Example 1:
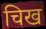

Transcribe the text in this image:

चिख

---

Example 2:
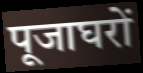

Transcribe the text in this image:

पूजाघरों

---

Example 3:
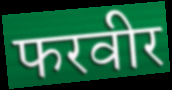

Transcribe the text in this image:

फरवीर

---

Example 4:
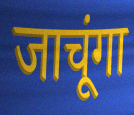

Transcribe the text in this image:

जाचूंगा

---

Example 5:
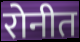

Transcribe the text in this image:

रोनीत